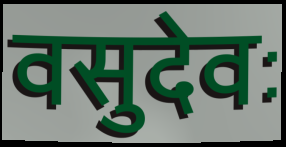
वसुदेवः